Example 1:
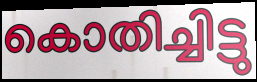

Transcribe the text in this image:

കൊതിച്ചിട്ടു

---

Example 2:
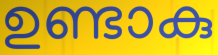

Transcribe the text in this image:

ഉണ്ടാകു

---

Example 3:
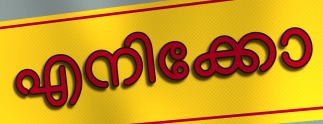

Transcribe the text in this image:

എനിക്കോ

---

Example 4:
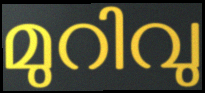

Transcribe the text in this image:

മുറിവു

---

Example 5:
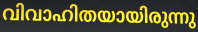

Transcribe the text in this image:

വിവാഹിതയായിരുന്നു